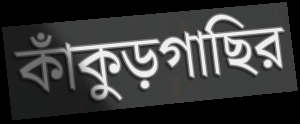
কাঁকুড়গাছির